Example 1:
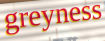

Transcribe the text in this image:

greyness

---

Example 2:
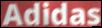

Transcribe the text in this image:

Adidas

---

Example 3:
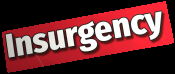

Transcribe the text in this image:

Insurgency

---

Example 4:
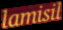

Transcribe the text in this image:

lamisil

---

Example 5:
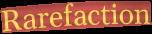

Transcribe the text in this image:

Rarefaction